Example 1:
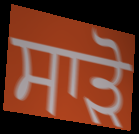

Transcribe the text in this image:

ਸਾੜੋ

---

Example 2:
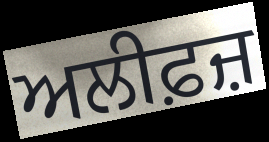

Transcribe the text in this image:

ਅਲੀਫ਼ਜ਼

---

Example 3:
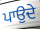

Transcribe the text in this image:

ਪਾਉਦੇ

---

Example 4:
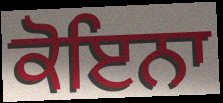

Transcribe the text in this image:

ਕੋਇਨਾ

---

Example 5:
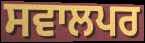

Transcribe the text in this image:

ਸਵਾਲਪਰ